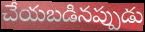
చేయబడినప్పుడు